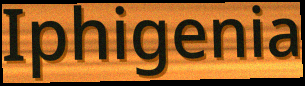
Iphigenia